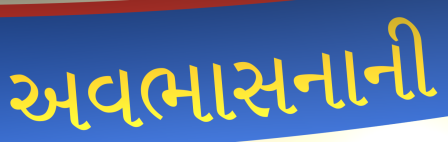
અવભાસનાની